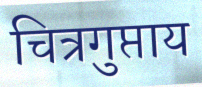
चित्रगुप्ताय